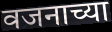
वजनाच्या